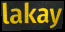
lakay